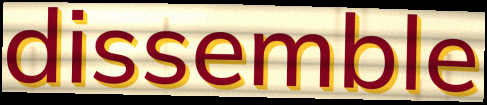
dissemble